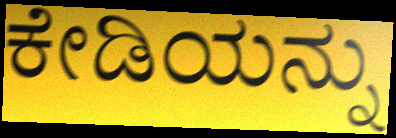
ಕೇಡಿಯನ್ನು